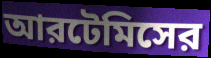
আরটেমিসের